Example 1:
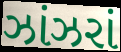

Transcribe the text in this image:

ઝાંઝરાં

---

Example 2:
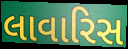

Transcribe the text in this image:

લાવારિસ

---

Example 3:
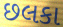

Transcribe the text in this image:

છલકા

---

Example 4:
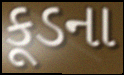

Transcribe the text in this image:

કૂડના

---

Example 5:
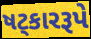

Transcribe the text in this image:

ષટ્કારરૂપે